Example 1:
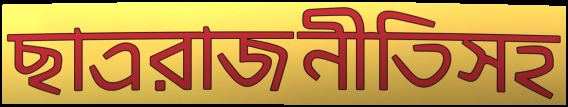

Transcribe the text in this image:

ছাত্ররাজনীতিসহ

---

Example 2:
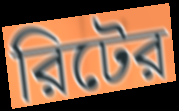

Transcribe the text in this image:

রিটের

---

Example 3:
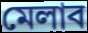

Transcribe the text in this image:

মেলাব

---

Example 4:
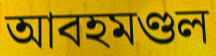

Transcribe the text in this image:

আবহমণ্ডল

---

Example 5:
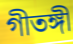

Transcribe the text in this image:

গীতঙ্গী